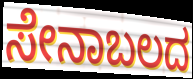
ಸೇನಾಬಲದ